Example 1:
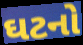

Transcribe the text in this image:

ઘટનો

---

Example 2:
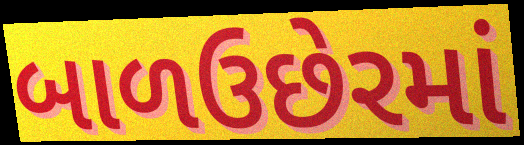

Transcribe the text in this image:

બાળઉછેરમાં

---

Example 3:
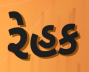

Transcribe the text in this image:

રેહક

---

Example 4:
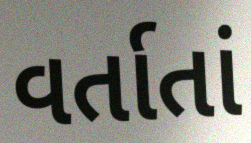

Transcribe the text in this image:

વર્તાતાં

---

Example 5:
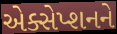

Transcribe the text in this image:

એક્સેપ્શનને